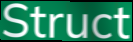
Struct